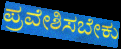
ಪ್ರವೇಶಿಸಬೇಕು